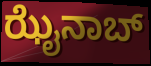
ಝೈನಾಬ್